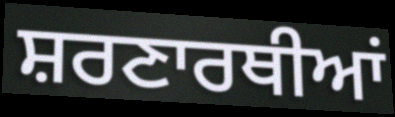
ਸ਼ਰਣਾਰਥੀਆਂ